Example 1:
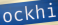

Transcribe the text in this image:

ockhi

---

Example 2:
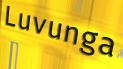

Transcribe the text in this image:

Luvunga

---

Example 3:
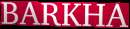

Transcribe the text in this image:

BARKHA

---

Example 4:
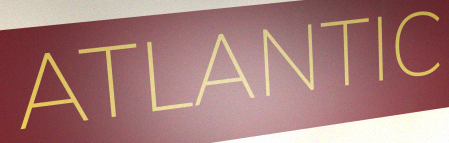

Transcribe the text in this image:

ATLANTIC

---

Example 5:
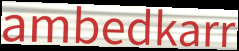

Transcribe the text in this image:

ambedkarr